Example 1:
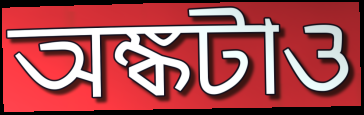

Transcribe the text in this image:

অঙ্কটাও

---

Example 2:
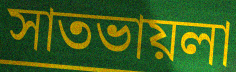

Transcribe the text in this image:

সাতভায়লা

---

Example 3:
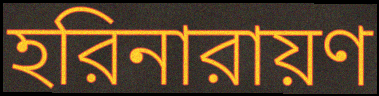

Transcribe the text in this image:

হরিনারায়ণ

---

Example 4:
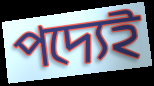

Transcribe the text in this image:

পদ্যেই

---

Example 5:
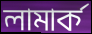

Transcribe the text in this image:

লামার্ক